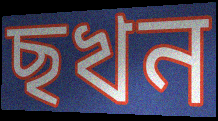
ছখন